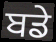
ਬਡੇ